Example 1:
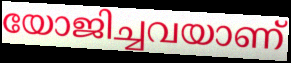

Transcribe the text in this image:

യോജിച്ചവയാണ്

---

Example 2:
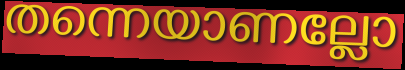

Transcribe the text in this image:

തന്നെയാണല്ലോ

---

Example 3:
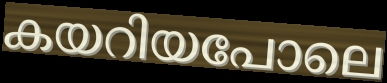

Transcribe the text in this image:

കയറിയപോലെ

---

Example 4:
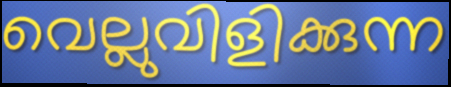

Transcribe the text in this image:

വെല്ലുവിളിക്കുന്ന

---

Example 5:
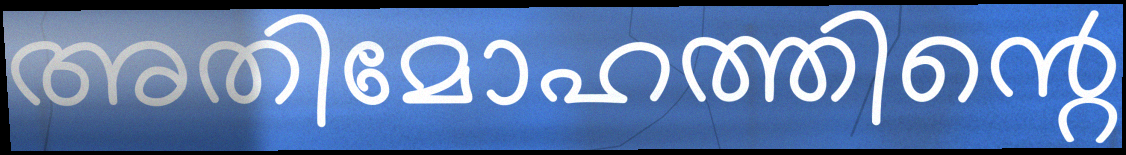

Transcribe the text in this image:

അതിമോഹത്തിന്റെ